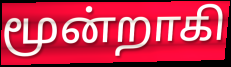
மூன்றாகி